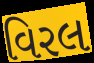
વિરલ